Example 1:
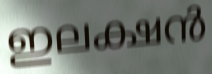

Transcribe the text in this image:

ഇലക്ഷൻ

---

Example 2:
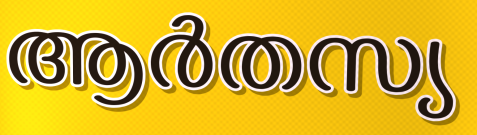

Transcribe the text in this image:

ആർതസ്യ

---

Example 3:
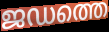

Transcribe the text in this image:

ജഡത്തെ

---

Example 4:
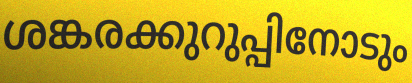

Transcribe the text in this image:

ശങ്കരക്കുറുപ്പിനോടും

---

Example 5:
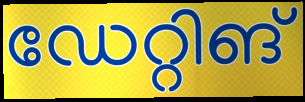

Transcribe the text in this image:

ഡേറ്റിങ്